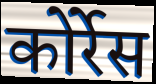
कोर्रेस